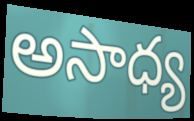
అసాధ్య